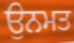
ਉਨਮਤ